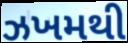
ઝખમથી